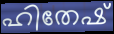
ഹിതേഷ്